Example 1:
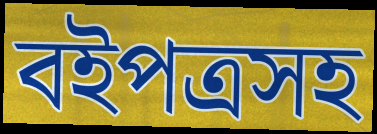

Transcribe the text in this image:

বইপত্রসহ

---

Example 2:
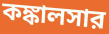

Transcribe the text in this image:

কঙ্কালসার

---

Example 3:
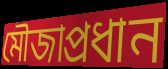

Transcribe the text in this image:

মৌজাপ্রধান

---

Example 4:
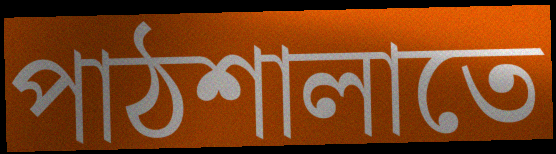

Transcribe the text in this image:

পাঠশালাতে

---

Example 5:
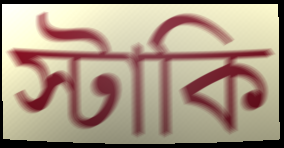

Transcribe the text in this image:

স্টাকি